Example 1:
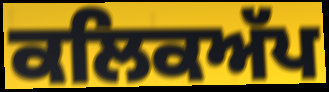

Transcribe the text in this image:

ਕਲਿਕਅੱਪ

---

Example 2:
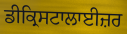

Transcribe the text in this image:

ਡੀਕ੍ਰਿਸਟਾਲਾਈਜ਼ਰ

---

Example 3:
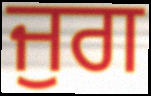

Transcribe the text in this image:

ਜੁਗ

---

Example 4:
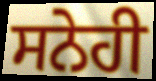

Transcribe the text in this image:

ਸਨੇਹੀ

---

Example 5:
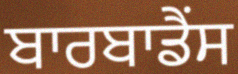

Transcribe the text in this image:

ਬਾਰਬਾਡੈਂਸ